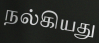
நல்கியது